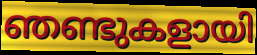
ഞണ്ടുകളായി